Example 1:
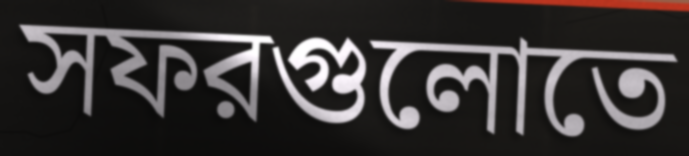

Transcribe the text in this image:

সফরগুলোতে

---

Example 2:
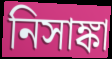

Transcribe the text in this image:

নিসাঙ্কা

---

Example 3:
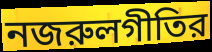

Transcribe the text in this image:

নজরুলগীতির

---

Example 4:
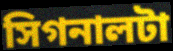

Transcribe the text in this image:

সিগনালটা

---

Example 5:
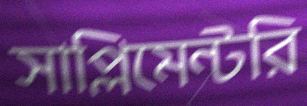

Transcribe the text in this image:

সাপ্লিমেন্টরি